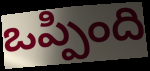
ఒప్పింది